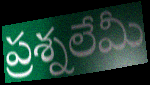
ప్రశ్నలేమీ